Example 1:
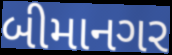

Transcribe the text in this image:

બીમાનગર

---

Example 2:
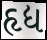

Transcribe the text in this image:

હૃદ્ય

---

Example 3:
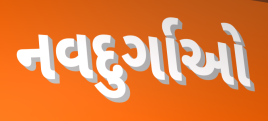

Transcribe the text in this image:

નવદુર્ગાઓ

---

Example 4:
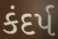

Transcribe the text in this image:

કંદર્પ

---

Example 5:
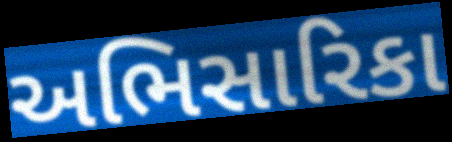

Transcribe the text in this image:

અભિસારિકા